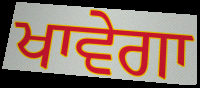
ਖਾਵੇਗਾ